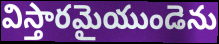
విస్తారమైయుండెను